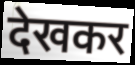
देखकर